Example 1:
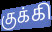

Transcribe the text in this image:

குக்கி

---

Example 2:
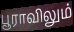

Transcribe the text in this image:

பூராவிலும்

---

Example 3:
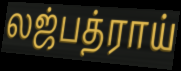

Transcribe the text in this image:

லஜ்பத்ராய்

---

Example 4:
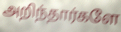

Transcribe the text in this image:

அறிந்தார்களே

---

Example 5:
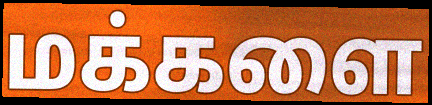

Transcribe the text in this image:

மக்களை